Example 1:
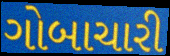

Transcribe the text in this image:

ગોબાચારી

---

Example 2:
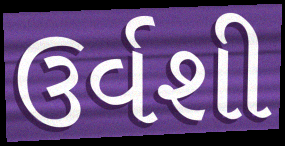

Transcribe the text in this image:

ઉર્વશી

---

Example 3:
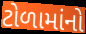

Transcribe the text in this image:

ટોળામાંનો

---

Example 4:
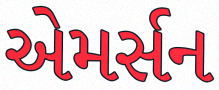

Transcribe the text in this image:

એમર્સન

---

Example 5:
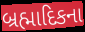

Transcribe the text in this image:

બ્રહ્માદિકના